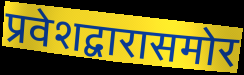
प्रवेशद्वारासमोर